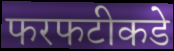
फरफटीकडे